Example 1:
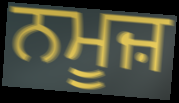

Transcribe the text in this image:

ਨਮੂਜ਼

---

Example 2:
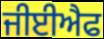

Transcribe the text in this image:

ਜੀਈਐਫ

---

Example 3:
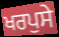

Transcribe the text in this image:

ਖਰਪੁਸੇ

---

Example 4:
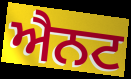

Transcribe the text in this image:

ਐਨਟ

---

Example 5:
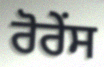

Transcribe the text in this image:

ਰੋਰੇਂਸ